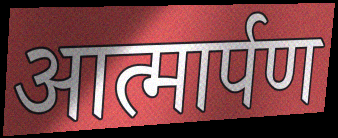
आत्मार्पण